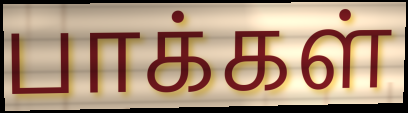
பாக்கள்